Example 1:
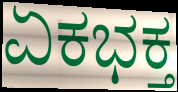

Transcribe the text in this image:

ಏಕಭಕ್ತ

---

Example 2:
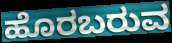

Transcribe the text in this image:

ಹೊರಬರುವ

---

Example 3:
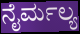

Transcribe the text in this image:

ನೈರ್ಮಲ್ಯ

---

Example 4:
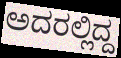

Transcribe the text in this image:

ಅದರಲ್ಲಿದ್ದ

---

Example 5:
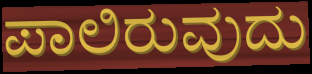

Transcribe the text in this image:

ಪಾಲಿರುವುದು